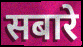
सबारे